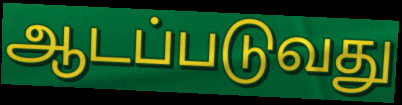
ஆடப்படுவது